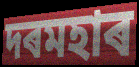
দৰমহাৰ